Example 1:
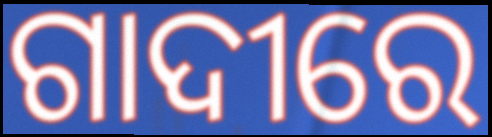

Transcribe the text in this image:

ଗାଦୀରେ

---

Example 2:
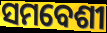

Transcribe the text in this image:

ସମବେଶୀ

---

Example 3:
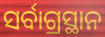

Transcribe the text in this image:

ସର୍ବାଗ୍ରସ୍ଥାନ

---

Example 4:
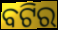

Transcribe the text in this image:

ବଟିର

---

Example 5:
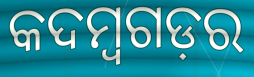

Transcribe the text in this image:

କଦମ୍ବଗଡ଼ର